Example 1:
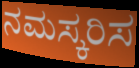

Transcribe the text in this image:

ನಮಸ್ಕರಿಸ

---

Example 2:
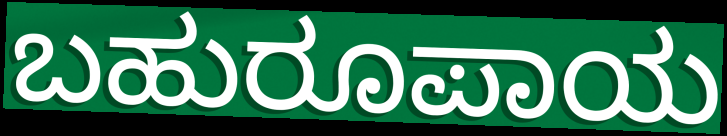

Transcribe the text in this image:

ಬಹುರೂಪಾಯ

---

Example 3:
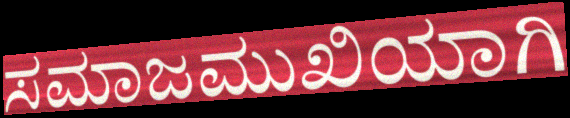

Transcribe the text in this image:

ಸಮಾಜಮುಖಿಯಾಗಿ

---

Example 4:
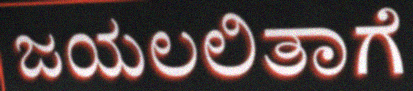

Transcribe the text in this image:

ಜಯಲಲಿತಾಗೆ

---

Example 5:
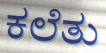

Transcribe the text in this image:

ಕಲೆತು